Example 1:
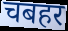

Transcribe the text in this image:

चबहर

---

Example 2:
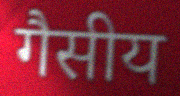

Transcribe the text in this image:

गैसीय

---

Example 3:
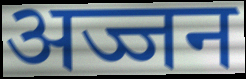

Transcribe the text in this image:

अज्जन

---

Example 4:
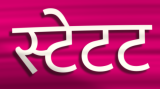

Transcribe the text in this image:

स्टेटट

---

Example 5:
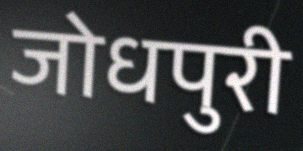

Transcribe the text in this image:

जोधपुरी